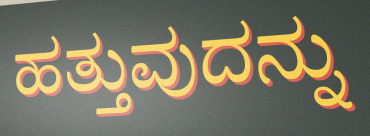
ಹತ್ತುವುದನ್ನು